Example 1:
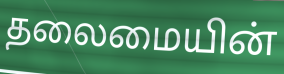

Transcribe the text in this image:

தலைமையின்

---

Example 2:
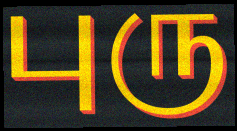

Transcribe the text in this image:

புரு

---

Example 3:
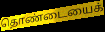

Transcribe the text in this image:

தொண்டையைக்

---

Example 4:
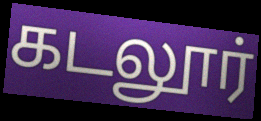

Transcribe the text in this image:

கடலூர்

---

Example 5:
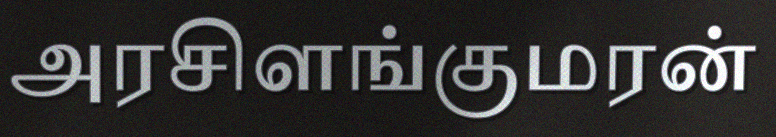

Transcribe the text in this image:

அரசிளங்குமரன்